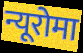
न्यूरोमा